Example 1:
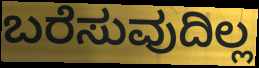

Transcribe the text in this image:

ಬರೆಸುವುದಿಲ್ಲ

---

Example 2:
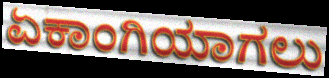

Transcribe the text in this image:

ಏಕಾಂಗಿಯಾಗಲು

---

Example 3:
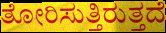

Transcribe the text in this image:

ತೋರಿಸುತ್ತಿರುತ್ತದೆ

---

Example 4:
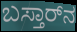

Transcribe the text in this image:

ಬಸ್ತಾರ್‌ನ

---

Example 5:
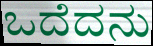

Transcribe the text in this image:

ಒದೆದನು